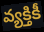
వ్యక్తికీ